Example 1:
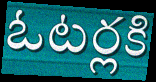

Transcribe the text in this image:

ఓటర్లకి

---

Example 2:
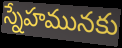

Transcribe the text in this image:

స్నేహమునకు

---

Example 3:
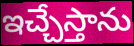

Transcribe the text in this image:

ఇచ్చేస్తాను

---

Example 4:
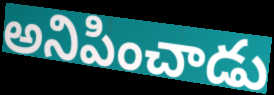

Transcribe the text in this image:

అనిపించాడు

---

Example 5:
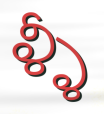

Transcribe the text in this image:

ళ్ళీ